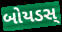
બોયડસ્